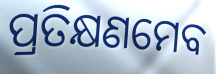
ପ୍ରତିକ୍ଷଣମେବ